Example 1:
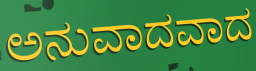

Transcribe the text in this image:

ಅನುವಾದವಾದ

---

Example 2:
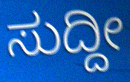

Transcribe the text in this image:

ಸುದ್ದೀ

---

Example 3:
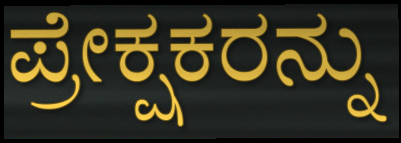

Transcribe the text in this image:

ಪ್ರೇಕ್ಷಕರನ್ನು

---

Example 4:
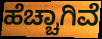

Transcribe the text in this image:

ಹೆಚ್ಚಾಗಿವೆ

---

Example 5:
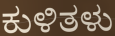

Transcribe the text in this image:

ಕುಳಿತಳು